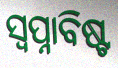
ସ୍ୱପ୍ନାବିଷ୍ଟ